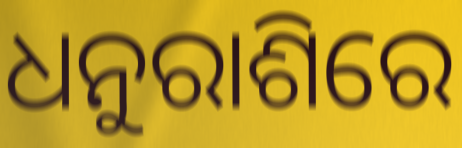
ଧନୁରାଶିରେ